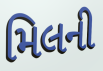
મિલની